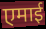
एमाई